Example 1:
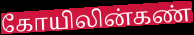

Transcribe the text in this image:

கோயிலின்கண்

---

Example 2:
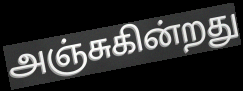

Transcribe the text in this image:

அஞ்சுகின்றது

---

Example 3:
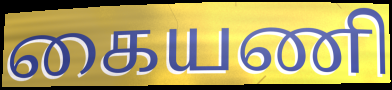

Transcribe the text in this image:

கையணி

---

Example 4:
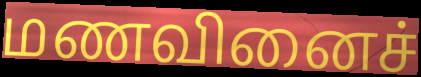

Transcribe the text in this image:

மணவினைச்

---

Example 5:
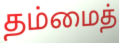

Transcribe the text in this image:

தம்மைத்